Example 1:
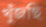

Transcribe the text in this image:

খুঁজছি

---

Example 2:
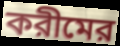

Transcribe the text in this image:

করীমের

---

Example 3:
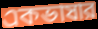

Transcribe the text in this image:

একভাষার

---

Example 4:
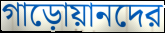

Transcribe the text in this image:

গাড়োয়ানদের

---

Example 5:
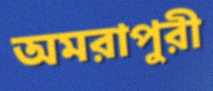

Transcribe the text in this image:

অমরাপুরী